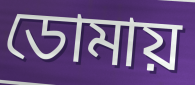
ডোমায়